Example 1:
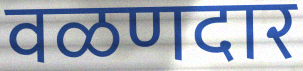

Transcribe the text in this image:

वळणदार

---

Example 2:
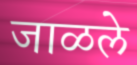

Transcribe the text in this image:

जाळले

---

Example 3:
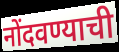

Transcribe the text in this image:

नोंदवण्याची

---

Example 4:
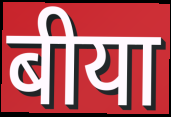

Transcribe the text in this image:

बीया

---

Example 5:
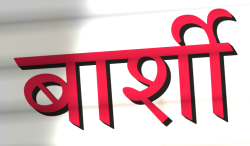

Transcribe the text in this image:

बार्शी